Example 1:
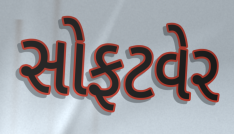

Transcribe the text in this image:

સોફટવેર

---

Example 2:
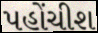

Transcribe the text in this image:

પહોંચીશ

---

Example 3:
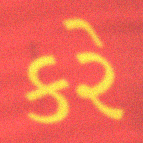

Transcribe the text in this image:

કરે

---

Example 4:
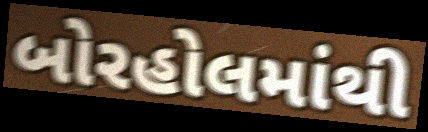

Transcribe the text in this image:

બોરહોલમાંથી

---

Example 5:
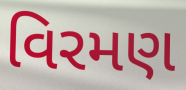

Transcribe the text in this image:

વિરમણ